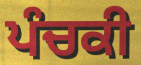
ਪੰਚਕੀ